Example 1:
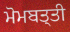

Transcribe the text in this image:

ਮੋਮਬਤ੍ਤੀ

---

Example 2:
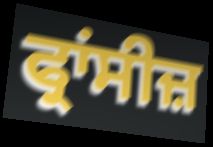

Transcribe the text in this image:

ਫ੍ਰਾਂਸੀਜ਼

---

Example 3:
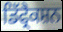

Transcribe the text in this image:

ਡਿੱਫ੍ਰੈਕਸ਼ਨ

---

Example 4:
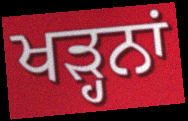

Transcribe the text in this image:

ਖੜ੍ਹਨਾਂ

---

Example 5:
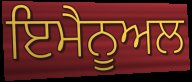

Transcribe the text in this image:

ਇਮੈਨੂਅਲ